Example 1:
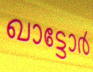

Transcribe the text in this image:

ഖാട്ടോർ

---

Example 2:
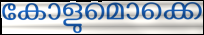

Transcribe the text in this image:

കോളുമൊക്കെ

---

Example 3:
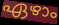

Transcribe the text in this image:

ഏഴാം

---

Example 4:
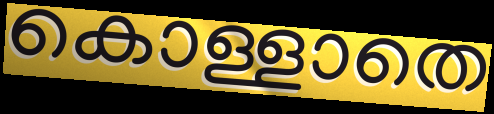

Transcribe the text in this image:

കൊള്ളാതെ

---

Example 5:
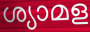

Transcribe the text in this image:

ശ്യാമള